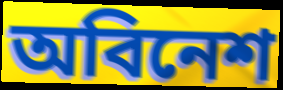
অবিনেশ